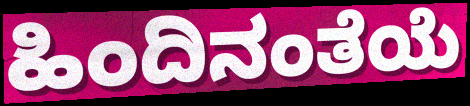
ಹಿಂದಿನಂತೆಯೆ